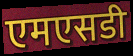
एमएसडी